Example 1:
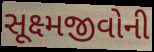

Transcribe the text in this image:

સૂક્ષ્મજીવોની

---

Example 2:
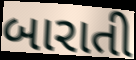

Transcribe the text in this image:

બારાતી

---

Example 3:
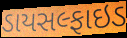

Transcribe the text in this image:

ડાયસલ્ફાઇડ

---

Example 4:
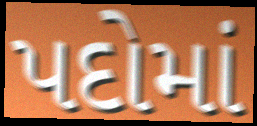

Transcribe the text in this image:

પદોમાં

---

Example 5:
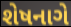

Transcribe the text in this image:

શેષનાગે